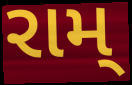
રામ્